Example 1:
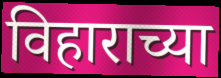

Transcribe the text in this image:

विहाराच्या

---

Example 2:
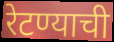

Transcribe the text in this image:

रेटण्याची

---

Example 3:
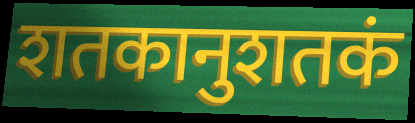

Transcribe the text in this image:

शतकानुशतकं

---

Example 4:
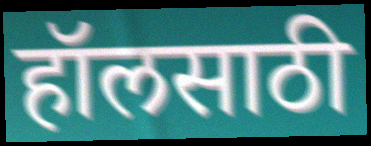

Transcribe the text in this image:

हॉलसाठी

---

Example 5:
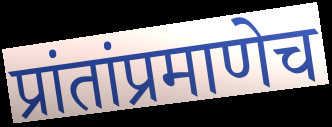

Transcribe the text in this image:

प्रांतांप्रमाणेच